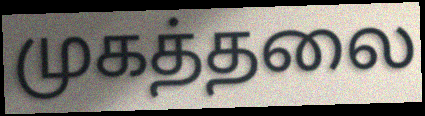
முகத்தலை